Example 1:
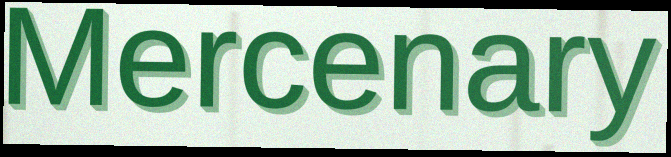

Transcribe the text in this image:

Mercenary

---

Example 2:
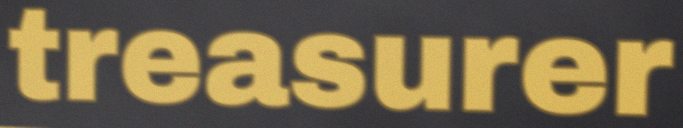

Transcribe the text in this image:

treasurer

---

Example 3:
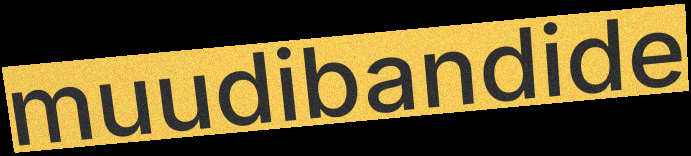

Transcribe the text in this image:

muudibandide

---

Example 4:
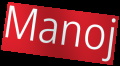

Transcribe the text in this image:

Manoj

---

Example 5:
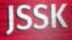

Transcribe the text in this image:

JSSK